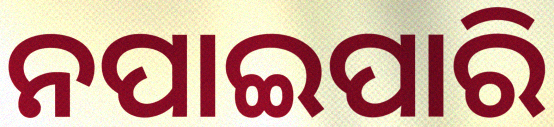
ନପାଇପାରି